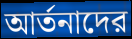
আর্তনাদের